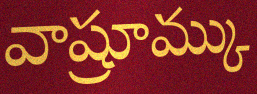
వాష్రూమ్కు